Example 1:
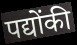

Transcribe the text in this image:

पद्योंकी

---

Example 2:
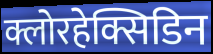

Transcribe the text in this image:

क्लोरहेक्सिडिन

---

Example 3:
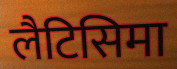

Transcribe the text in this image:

लैटिसिमा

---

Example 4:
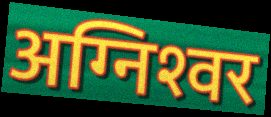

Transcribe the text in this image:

अग्निश्वर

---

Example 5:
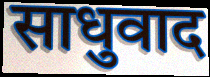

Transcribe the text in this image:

साधुवाद